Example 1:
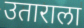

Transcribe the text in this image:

उताराला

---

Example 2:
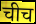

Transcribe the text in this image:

चीच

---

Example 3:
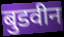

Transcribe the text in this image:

बुडवीन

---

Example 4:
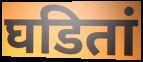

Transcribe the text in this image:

घडितां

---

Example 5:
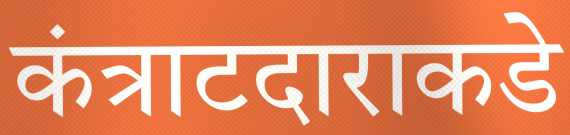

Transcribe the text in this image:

कंत्राटदाराकडे